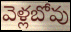
వెళ్లబోవు